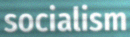
socialism